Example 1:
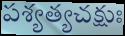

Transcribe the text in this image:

పశ్యత్యచక్షుః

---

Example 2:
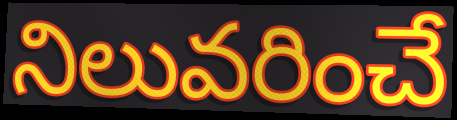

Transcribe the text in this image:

నిలువరించే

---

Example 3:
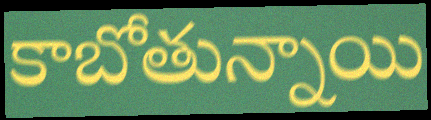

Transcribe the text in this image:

కాబోతున్నాయి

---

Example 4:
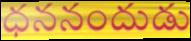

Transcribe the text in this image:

ధననందుడు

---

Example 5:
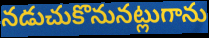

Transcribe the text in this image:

నడుచుకొనునట్లుగాను